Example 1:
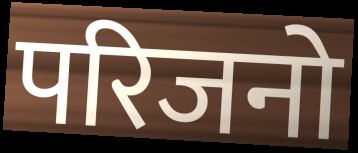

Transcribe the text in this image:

परिजनो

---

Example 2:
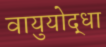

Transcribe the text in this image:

वायुयोद्धा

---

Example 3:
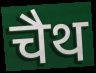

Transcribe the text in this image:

चैथ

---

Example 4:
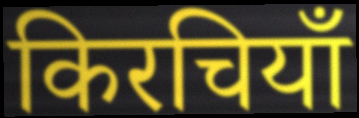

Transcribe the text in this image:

किरचियाँ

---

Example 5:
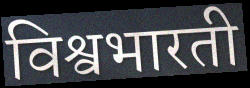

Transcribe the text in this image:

विश्वभारती